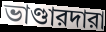
ভাণ্ডারদারা